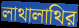
লাথালাথির